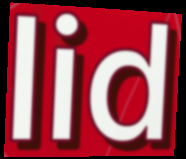
lid